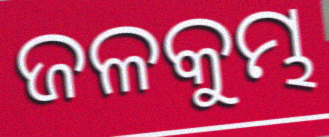
ଜଳକୁମ୍ଭ